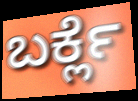
ಬರ್ಕ್ಲೆ